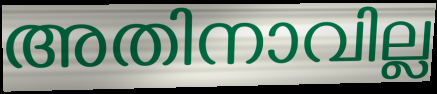
അതിനാവില്ല